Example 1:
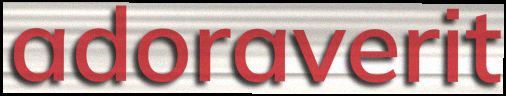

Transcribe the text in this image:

adoraverit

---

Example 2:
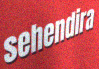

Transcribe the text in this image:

sehendira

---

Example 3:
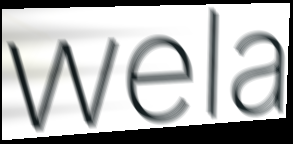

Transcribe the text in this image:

wela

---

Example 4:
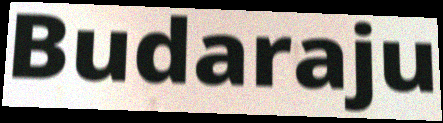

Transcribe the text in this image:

Budaraju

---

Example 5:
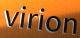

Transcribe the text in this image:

virion